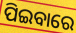
ପିଇବାରେ